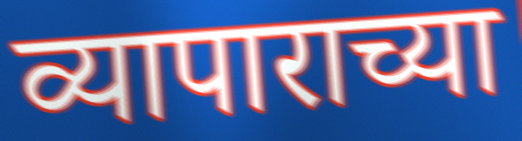
व्यापाराच्या